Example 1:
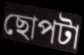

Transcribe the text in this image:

ছোপটা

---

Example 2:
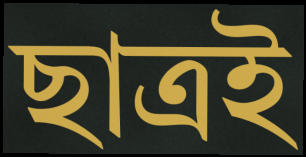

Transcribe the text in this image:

ছাত্রই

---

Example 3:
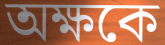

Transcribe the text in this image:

অক্ষকে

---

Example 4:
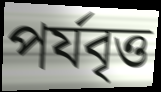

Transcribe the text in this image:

পর্যবৃত্ত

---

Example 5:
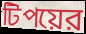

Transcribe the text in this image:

টিপয়ের